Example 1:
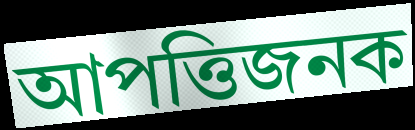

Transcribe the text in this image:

আপত্তিজনক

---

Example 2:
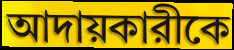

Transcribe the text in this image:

আদায়কারীকে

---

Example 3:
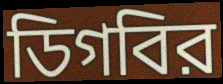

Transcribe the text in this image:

ডিগবির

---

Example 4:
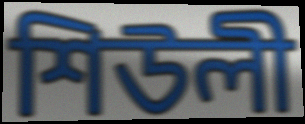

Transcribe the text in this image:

শিউলী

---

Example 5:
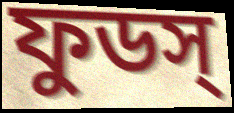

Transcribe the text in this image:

ফুডস্